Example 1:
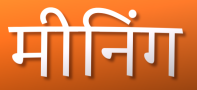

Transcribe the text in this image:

मीनिंग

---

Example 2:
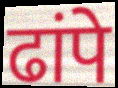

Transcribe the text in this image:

ढांपे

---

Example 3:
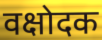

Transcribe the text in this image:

वक्षोदक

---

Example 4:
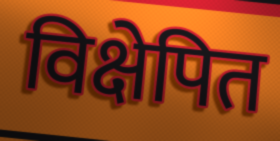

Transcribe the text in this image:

विक्षेपित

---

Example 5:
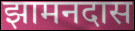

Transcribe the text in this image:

झामनदास